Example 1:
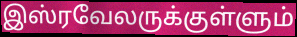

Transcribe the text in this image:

இஸ்ரவேலருக்குள்ளும்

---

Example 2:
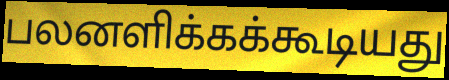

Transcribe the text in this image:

பலனளிக்கக்கூடியது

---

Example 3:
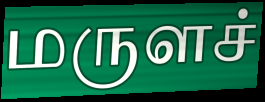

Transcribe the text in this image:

மருளச்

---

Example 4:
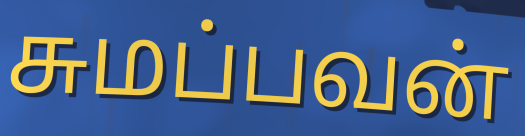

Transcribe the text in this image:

சுமப்பவன்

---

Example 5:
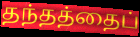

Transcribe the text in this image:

தந்தத்தைப்